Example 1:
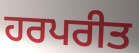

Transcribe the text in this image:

ਹਰਪਰੀਤ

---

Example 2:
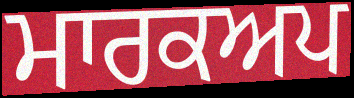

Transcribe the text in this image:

ਮਾਰਕਅਪ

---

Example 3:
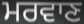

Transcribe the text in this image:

ਮਰਵਾਣ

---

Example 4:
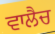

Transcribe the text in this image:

ਵਾਲੈਚ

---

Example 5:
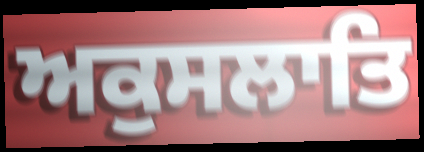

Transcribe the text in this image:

ਅਕੁਸਲਾਤਿ